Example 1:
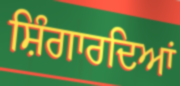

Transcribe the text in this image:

ਸ਼ਿੰਗਾਰਦਿਆਂ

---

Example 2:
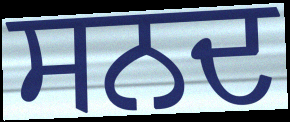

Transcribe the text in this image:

ਸਨਦ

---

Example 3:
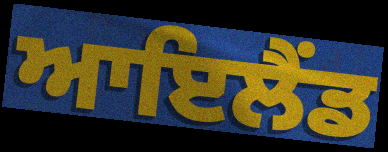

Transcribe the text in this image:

ਆਇਲੈੰਡ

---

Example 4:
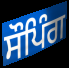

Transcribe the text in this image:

ਸੌਪਿੰਗ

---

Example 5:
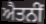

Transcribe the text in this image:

ਐਤਨੀਂ